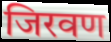
जिरवण